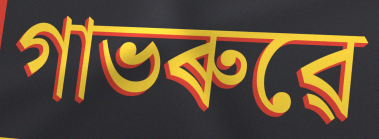
গাভৰুৱে